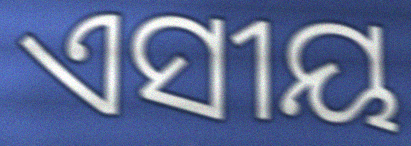
ଏସୀୟ